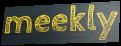
meekly